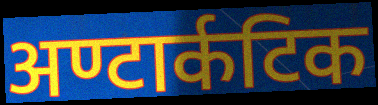
अण्टार्कटिक